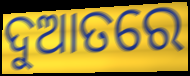
ଦୁଆତରେ